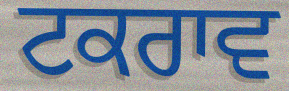
ਟਕਰਾਵ